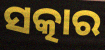
ସତ୍କାର